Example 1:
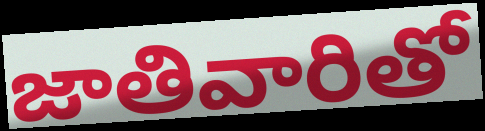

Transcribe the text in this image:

జాతివారితో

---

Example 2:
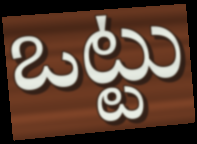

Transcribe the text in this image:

ఒట్టు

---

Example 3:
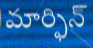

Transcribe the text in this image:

మార్ఫిన్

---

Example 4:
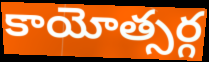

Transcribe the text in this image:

కాయోత్సర్గ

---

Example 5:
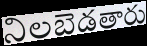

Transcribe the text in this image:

నిలబెడతారు